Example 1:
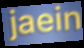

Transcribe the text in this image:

jaein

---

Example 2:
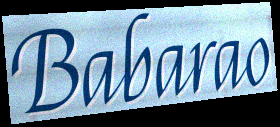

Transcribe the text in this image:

Babarao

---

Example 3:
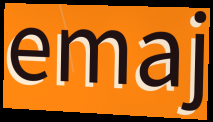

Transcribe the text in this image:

emaj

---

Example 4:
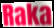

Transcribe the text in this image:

Raka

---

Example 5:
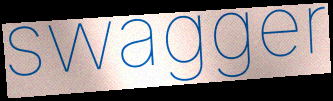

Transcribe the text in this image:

swagger